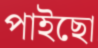
পাইছো